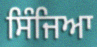
ਸਿੰਜਿਆ